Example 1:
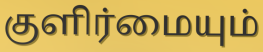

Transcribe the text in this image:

குளிர்மையும்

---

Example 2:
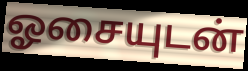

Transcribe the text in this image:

ஓசையுடன்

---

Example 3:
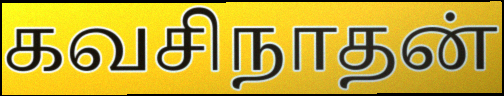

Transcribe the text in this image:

கவசிநாதன்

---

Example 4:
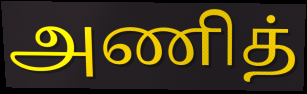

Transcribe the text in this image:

அணித்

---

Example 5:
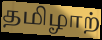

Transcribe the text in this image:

தமிழாற்